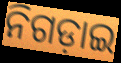
ନିଗଡ଼ାଇ